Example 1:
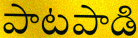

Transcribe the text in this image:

పాటపాడి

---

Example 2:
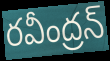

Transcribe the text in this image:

రవీంద్రన్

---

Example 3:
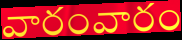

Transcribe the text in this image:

వారంవారం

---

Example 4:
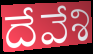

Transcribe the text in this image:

దేవేశి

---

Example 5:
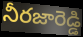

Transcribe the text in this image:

నీరజారెడ్డి